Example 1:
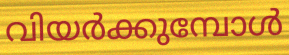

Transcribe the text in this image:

വിയർക്കുമ്പോൾ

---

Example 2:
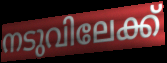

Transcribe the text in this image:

നടുവിലേക്ക്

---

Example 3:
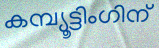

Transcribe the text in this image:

കമ്പ്യൂട്ടിംഗിന്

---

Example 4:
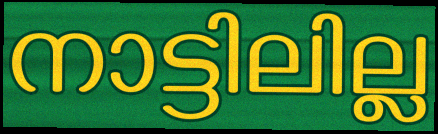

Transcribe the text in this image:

നാട്ടിലില്ല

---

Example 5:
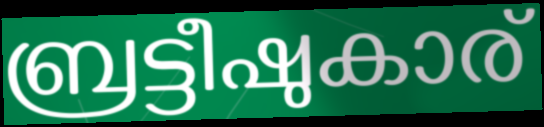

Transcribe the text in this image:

ബ്രട്ടീഷുകാര്